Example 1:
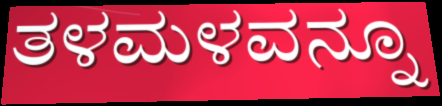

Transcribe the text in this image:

ತಳಮಳವನ್ನೂ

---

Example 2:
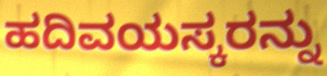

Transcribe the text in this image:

ಹದಿವಯಸ್ಕರನ್ನು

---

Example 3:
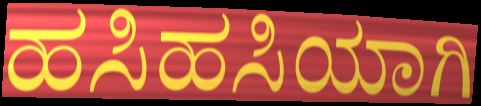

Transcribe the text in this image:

ಹಸಿಹಸಿಯಾಗಿ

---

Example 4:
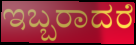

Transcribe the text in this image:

ಇಬ್ಬರಾದರೆ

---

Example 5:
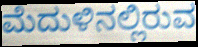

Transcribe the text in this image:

ಮೆದುಳಿನಲ್ಲಿರುವ